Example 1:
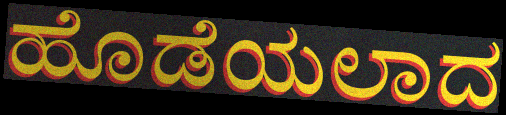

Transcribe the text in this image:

ಹೊಡೆಯಲಾದ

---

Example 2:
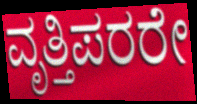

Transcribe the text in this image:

ವೃತ್ತಿಪರರೇ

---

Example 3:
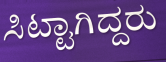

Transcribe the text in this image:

ಸಿಟ್ಟಾಗಿದ್ದರು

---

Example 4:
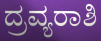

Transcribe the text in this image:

ದ್ರವ್ಯರಾಶಿ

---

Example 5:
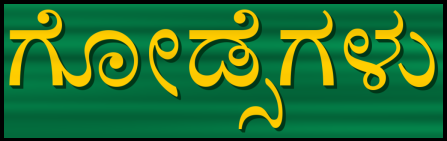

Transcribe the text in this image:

ಗೋಡ್ಸೆಗಳು